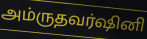
அம்ருதவர்ஷினி